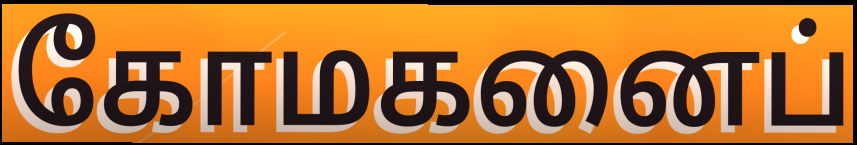
கோமகனைப்